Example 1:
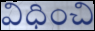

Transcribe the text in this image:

విధించి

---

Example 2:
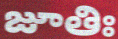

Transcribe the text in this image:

జూతిః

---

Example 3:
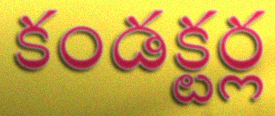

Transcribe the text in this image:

కండక్టర్ల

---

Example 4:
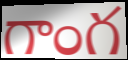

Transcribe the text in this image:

గాంగ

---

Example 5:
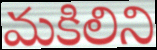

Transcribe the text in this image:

మకిలిని